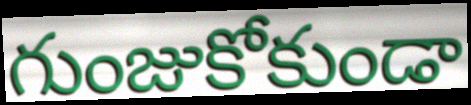
గుంజుకోకుండా